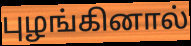
புழங்கினால்